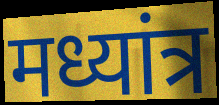
मध्यांत्र